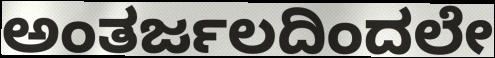
ಅಂತರ್ಜಲದಿಂದಲೇ